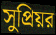
সুপ্রিয়র